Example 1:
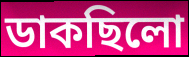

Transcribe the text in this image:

ডাকছিলো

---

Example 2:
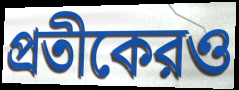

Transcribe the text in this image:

প্রতীকেরও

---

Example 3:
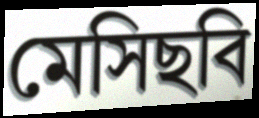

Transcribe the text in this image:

মেসিছবি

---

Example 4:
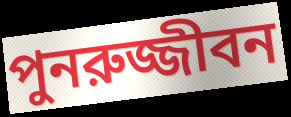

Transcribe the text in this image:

পুনরুজ্জীবন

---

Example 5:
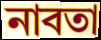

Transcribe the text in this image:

নাবতা